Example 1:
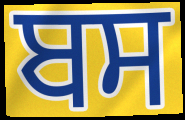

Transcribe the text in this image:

ਬਸ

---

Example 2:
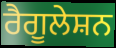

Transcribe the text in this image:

ਰੈਗੂਲੇਸ਼ਨ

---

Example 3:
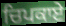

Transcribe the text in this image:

ਚਿਪਕਾਏ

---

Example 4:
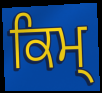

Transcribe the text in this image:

ਕਿਮ੍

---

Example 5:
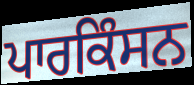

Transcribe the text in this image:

ਪਾਰਕਿੰਸਨ